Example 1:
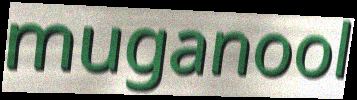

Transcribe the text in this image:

muganool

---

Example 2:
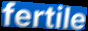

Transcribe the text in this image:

fertile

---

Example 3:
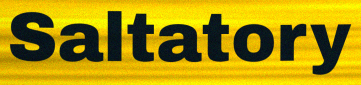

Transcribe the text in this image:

Saltatory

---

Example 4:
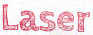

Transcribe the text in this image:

Laser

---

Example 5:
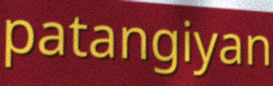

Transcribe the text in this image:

patangiyan